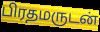
பிரதமருடன்